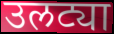
उलट्या